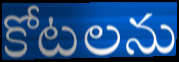
కోటలను